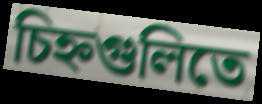
চিহ্নগুলিতে